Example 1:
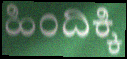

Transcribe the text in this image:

ಹಿಂದಿಕ್ಕಿ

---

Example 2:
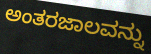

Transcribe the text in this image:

ಅಂತರಜಾಲವನ್ನು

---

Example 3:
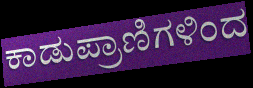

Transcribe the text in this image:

ಕಾಡುಪ್ರಾಣಿಗಳಿಂದ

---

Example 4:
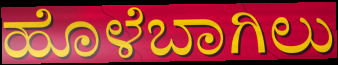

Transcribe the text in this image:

ಹೊಳೆಬಾಗಿಲು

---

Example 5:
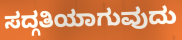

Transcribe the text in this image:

ಸದ್ಗತಿಯಾಗುವುದು